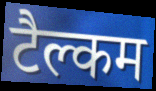
टैल्कम